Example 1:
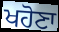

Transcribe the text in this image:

ਖਹੋਣਾ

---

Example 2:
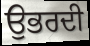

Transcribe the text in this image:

ਉਭਰਦੀ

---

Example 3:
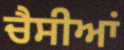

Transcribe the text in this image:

ਚੈਸੀਆਂ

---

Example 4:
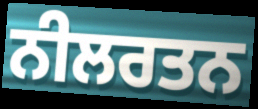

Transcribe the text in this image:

ਨੀਲਰਤਨ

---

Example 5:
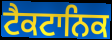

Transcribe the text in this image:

ਟੈਕਟਾਨਿਕ